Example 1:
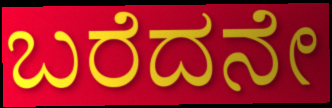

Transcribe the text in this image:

ಬರೆದನೇ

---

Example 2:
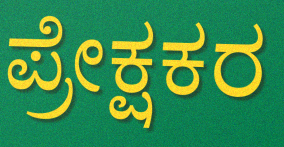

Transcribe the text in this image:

ಪ್ರೇಕ್ಷಕರ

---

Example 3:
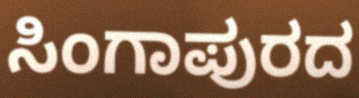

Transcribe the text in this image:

ಸಿಂಗಾಪುರದ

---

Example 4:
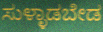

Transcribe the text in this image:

ಸುಳ್ಳಾಡಬೇಡ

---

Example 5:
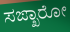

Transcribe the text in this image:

ಸಙ್ಖಾರೋ